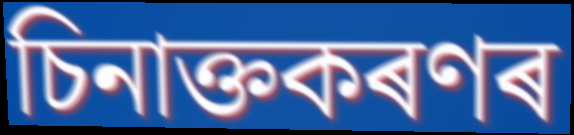
চিনাক্তকৰণৰ